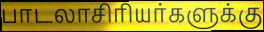
பாடலாசிரியர்களுக்கு